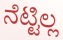
ನೆಟ್ಟಿಲ್ಲ